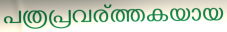
പത്രപ്രവര്ത്തകയായ